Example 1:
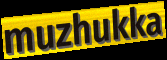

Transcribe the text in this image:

muzhukka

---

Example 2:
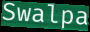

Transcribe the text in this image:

Swalpa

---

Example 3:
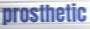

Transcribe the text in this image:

prosthetic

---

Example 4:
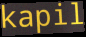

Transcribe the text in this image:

kapil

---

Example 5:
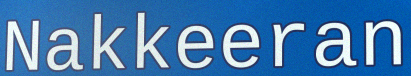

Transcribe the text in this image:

Nakkeeran